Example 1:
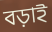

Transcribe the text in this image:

বড়াই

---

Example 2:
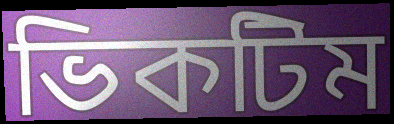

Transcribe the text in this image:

ভিকটিম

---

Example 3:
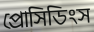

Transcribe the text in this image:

প্রোসিডিংস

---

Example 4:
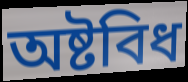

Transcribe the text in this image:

অষ্টবিধ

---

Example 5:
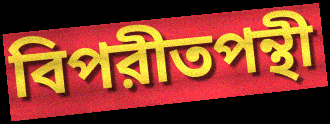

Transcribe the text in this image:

বিপরীতপন্থী